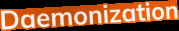
Daemonization